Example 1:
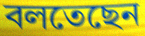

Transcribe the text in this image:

বলতেছেন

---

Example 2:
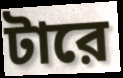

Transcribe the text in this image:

টারে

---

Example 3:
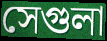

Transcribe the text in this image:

সেগুলা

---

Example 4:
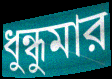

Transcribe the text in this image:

ধুন্ধুমার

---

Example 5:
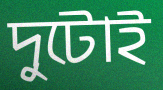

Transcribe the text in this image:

দুটোই